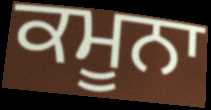
ਕਮੂਨਾ